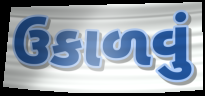
ઉકાળવું